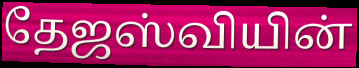
தேஜஸ்வியின்